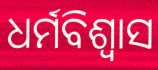
ଧର୍ମବିଶ୍ୱାସ